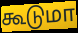
கூடுமா